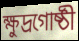
ক্ষুদ্রগোষ্ঠী